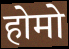
होमो